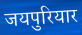
जयपुरियार